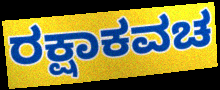
ರಕ್ಷಾಕವಚ